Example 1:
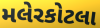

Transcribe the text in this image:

મલેરકોટલા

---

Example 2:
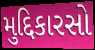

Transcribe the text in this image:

મુદ્દિકારસો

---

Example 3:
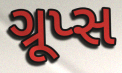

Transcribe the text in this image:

ગ્રૂપ્સ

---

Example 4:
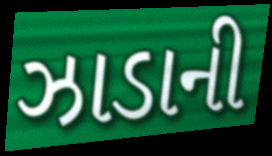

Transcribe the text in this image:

ઝાડાની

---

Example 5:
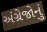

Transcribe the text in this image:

અંગ્રેજોનું